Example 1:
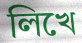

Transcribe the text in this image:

লিখে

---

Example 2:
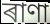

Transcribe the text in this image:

ৰাণা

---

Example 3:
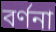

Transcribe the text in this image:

বৰ্ণনা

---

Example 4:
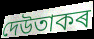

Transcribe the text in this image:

দেউতাকৰ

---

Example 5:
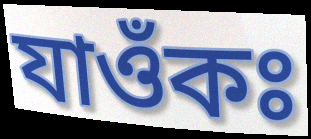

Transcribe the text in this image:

যাওঁকঃ